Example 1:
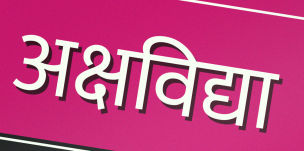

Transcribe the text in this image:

अक्षविद्या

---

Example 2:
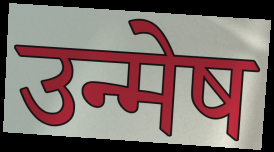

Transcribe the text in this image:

उन्मेष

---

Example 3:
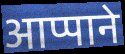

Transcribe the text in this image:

आप्पाने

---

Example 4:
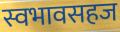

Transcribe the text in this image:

स्वभावसहज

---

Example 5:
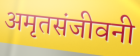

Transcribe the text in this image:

अमृतसंजीवनी